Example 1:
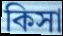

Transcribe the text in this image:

কিসা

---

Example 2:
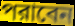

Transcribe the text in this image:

পরাবেন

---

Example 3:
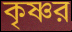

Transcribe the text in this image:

কৃষ্ণর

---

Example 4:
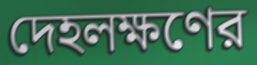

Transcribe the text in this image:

দেহলক্ষণের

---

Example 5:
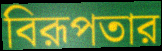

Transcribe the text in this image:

বিরূপতার